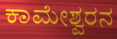
ಕಾಮೇಶ್ವರನ